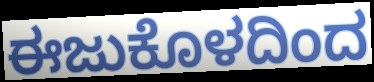
ಈಜುಕೊಳದಿಂದ